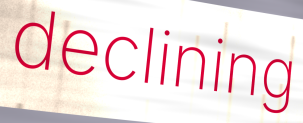
declining